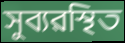
সুব্যৱস্থিত